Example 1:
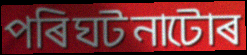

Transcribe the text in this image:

পৰিঘটনাটোৰ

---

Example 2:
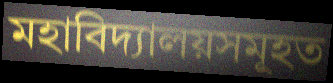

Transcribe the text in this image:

মহাবিদ্যালয়সমূহত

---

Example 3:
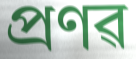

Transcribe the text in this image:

প্ৰণৱ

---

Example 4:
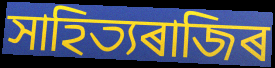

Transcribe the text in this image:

সাহিত্যৰাজিৰ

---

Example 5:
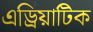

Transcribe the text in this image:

এড্ৰিয়াটিক